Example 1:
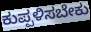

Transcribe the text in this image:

ಕುಪ್ಪಳಿಸಬೇಕು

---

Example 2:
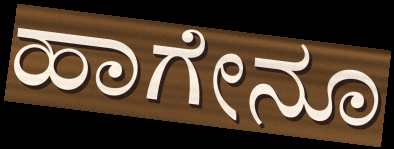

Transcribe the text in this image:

ಹಾಗೇನೂ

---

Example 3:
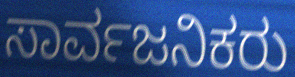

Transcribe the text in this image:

ಸಾರ್ವಜನಿಕರು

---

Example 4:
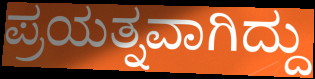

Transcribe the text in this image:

ಪ್ರಯತ್ನವಾಗಿದ್ದು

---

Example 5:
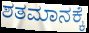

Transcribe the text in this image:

ಶತಮಾನಕ್ಕೆ